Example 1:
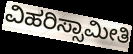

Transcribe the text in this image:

ವಿಹರಿಸ್ಸಾಮೀತಿ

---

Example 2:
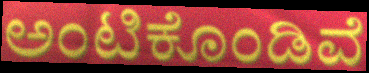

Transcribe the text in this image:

ಅಂಟಿಕೊಂಡಿವೆ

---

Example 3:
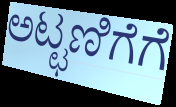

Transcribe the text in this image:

ಅಟ್ಟಣಿಗೆಗೆ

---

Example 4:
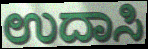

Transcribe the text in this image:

ಉದಾಸಿ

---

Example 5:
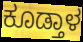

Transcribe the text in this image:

ಕೂಡ್ತಾಳ